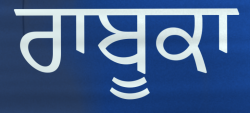
ਰਾਬੂਕਾ